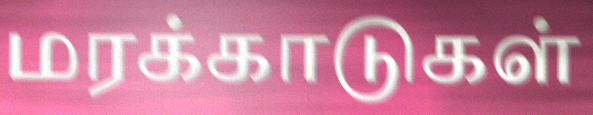
மரக்காடுகள்